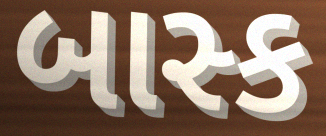
બાસ્ક